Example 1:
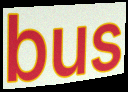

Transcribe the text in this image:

bus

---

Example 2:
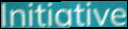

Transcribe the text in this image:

Initiative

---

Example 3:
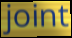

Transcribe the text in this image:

joint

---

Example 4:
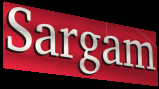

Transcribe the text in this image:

Sargam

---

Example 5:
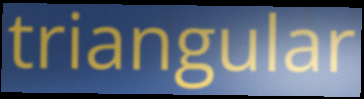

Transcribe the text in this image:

triangular